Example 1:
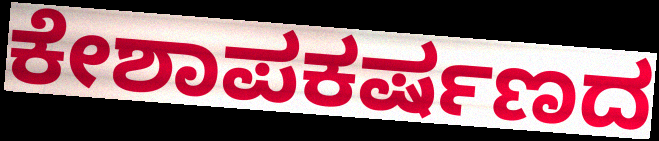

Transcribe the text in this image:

ಕೇಶಾಪಕರ್ಷಣದ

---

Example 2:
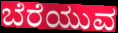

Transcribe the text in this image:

ಬೆರೆಯುವ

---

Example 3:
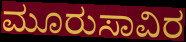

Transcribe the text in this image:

ಮೂರುಸಾವಿರ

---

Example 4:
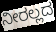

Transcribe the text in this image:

ನೀರಲ್ಲದ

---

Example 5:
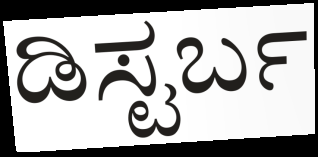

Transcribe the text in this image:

ಡಿಸ್ಟರ್ಬ